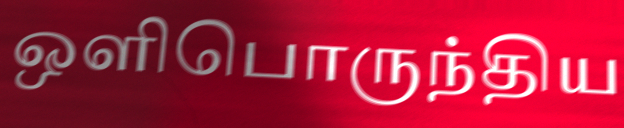
ஒளிபொருந்திய